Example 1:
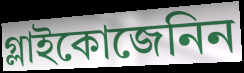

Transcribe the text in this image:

গ্লাইকোজেনিন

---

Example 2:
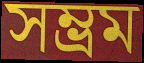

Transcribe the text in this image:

সম্ভ্রম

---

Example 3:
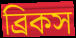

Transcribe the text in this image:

ব্রিকস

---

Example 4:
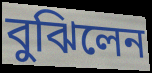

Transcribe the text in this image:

বুঝিলেন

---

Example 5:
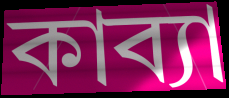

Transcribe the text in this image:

কাব্যা